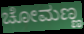
ಚೋಮಣ್ಣ